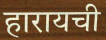
हारायची